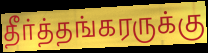
தீர்த்தங்கரருக்கு